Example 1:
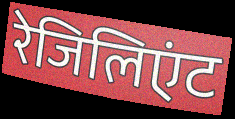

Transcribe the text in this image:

रेजिलिएंट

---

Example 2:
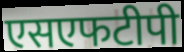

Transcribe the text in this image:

एसएफटीपी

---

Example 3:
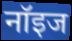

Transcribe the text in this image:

नॉइज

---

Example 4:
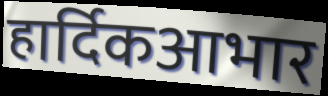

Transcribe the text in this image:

हार्दिकआभार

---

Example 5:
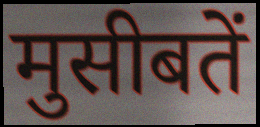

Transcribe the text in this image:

मुसीबतें